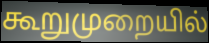
கூறுமுறையில்